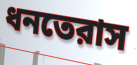
ধনতেরাস